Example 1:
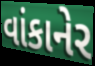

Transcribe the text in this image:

વાંકાનેર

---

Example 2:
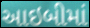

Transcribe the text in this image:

આઇબીમાં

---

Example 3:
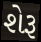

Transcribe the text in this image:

શેરૂ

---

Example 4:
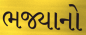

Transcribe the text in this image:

ભજ્યાનો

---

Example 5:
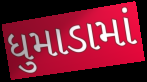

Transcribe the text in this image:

ધુમાડામાં